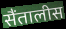
सैंतालीस